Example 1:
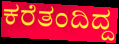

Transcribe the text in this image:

ಕರೆತಂದಿದ್ದ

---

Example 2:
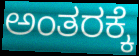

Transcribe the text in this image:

ಅಂತರಕ್ಕೆ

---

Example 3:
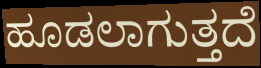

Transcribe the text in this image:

ಹೂಡಲಾಗುತ್ತದೆ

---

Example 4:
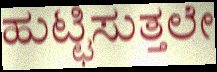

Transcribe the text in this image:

ಹುಟ್ಟಿಸುತ್ತಲೇ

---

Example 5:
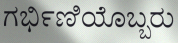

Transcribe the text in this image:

ಗರ್ಭಿಣಿಯೊಬ್ಬರು